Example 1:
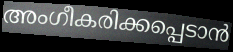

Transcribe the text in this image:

അംഗീകരിക്കപ്പെടാൻ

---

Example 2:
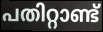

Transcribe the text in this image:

പതിറ്റാണ്ട്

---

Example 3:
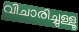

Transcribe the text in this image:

വിചാരിച്ചുള്ളൂ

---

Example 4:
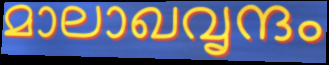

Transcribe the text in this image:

മാലാഖവൃന്ദം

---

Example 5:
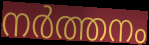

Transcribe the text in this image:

നർത്തനം